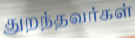
துறந்தவர்கள்